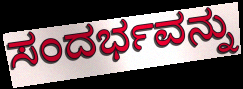
ಸಂದರ್ಭವನ್ನು